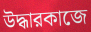
উদ্ধারকাজে